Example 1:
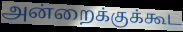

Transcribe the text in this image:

அன்றைக்குக்கூட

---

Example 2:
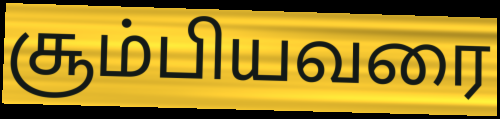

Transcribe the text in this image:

சூம்பியவரை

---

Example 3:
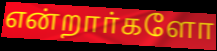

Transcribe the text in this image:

என்றார்களோ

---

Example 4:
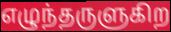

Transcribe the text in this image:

எழுந்தருளுகிற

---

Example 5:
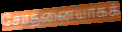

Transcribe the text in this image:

சோதனையாகக்